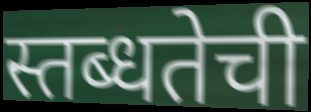
स्तब्धतेची